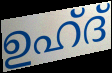
ഉഹ്ദ്